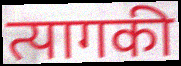
त्यागकी